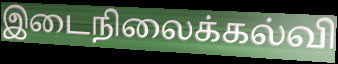
இடைநிலைக்கல்வி